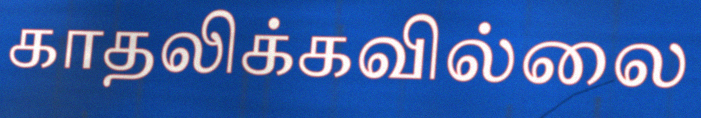
காதலிக்கவில்லை